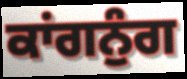
ਕਾਂਗਨੁੰਗ